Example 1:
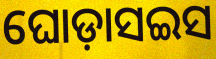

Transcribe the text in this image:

ଘୋଡ଼ାସଇସ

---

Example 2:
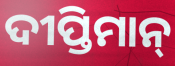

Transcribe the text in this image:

ଦୀପ୍ତିମାନ୍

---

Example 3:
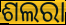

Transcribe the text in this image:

ଶଲରା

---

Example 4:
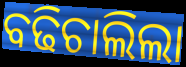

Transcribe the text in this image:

ବଢିଚାଲିଲା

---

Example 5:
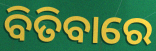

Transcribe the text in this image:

ବିତିବାରେ